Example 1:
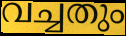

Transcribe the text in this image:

വച്ചതും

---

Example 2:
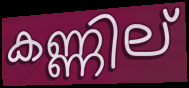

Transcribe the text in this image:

കണ്ണില്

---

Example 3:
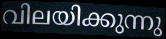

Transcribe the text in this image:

വിലയിക്കുന്നു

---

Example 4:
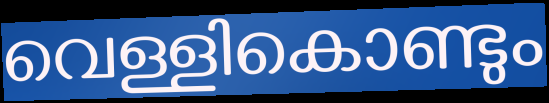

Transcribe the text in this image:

വെള്ളികൊണ്ടും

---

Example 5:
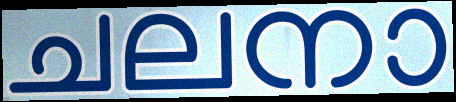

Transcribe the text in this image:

ചലനാ